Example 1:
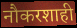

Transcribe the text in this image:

नौकरशाही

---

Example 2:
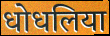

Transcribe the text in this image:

धोधलिया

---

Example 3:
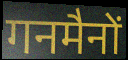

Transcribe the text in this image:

गनमैनों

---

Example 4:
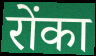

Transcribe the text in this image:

रोंका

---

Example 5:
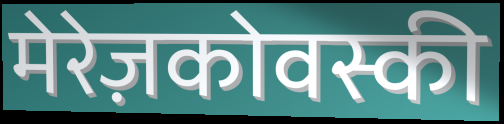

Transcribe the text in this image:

मेरेज़कोवस्की